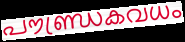
പൗണ്ഡ്രകവധം